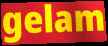
gelam